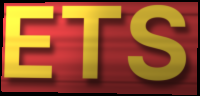
ETS